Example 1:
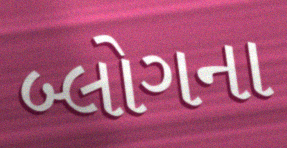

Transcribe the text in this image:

બ્લોગના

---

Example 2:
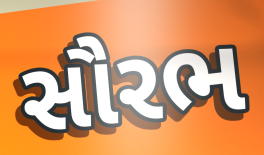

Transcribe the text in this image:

સૌરભ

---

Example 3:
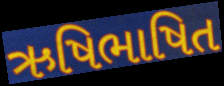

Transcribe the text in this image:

ઋષિભાષિત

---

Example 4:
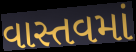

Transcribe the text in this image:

વાસ્તવમાં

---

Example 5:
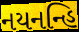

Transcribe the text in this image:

નયનન્હિ